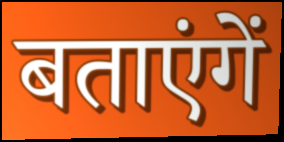
बताएंगें